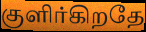
குளிர்கிறதே